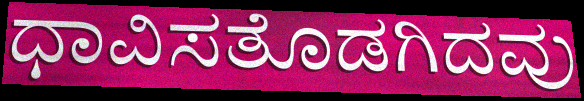
ಧಾವಿಸತೊಡಗಿದವು